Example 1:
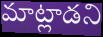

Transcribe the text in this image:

మాట్లాడని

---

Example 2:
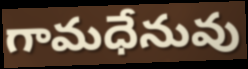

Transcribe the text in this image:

గామధేనువు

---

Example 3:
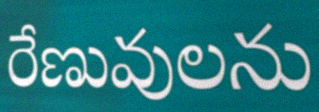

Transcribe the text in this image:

రేణువులను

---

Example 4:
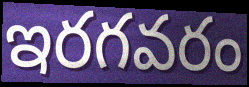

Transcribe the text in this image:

ఇరగవరం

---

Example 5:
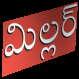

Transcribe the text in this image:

మిల్లర్